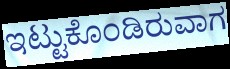
ಇಟ್ಟುಕೊಂಡಿರುವಾಗ